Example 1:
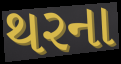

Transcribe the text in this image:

થરના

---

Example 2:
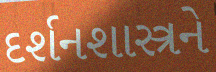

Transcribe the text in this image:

દર્શનશાસ્ત્રને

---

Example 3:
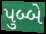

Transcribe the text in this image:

પુબ્બે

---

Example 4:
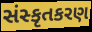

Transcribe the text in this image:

સંસ્કૃતકરણ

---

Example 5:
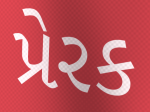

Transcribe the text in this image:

પ્રેરક